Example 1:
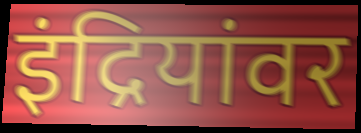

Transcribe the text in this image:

इंद्रियांवर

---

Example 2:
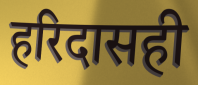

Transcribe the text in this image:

हरिदासही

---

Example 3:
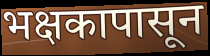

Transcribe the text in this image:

भक्षकापासून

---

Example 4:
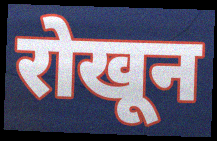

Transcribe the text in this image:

रोखून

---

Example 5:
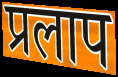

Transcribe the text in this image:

प्रलाप